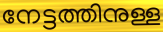
നേട്ടത്തിനുള്ള